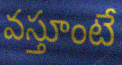
వస్తూంటే